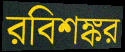
রবিশঙ্কর